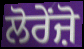
ਲੋਰੇਂਜ਼ੋ